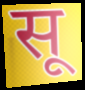
सू